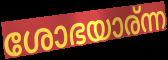
ശോഭയാര്ന്ന